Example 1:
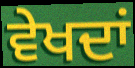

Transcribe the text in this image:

ਵੇਖਦਾਂ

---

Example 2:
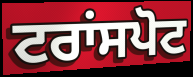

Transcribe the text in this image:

ਟਰਾਂਸਪੋਟ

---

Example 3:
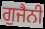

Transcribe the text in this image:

ਗੁਜੈਨੀ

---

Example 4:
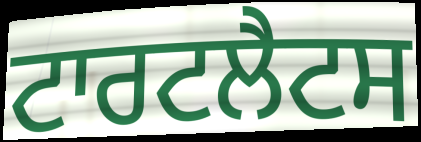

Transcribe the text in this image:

ਟਾਰਟਲੈਟਸ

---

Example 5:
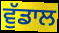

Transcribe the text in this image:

ਵੁੱਡਾਲ